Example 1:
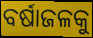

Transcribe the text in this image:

ବର୍ଷାଜଳକୁ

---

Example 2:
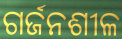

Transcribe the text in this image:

ଗର୍ଜନଶୀଳ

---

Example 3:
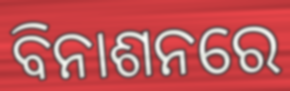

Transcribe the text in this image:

ବିନାଶନରେ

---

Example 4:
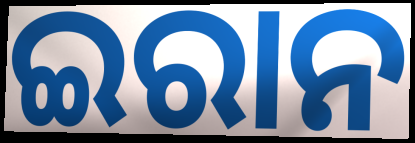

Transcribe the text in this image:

ଇରାନ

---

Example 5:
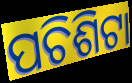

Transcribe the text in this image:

ପଚିଶିଟା